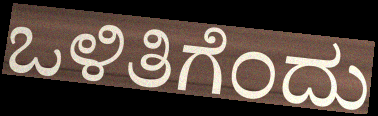
ಒಳಿತಿಗೆಂದು